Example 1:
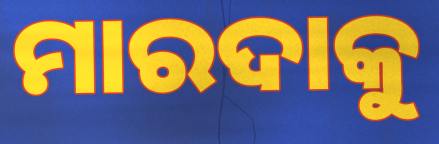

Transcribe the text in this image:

ମାରଦାକୁ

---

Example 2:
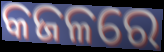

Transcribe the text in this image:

କଜଳରେ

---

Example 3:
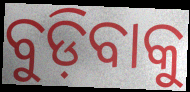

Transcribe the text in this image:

ବୁଡ଼ିବାକୁ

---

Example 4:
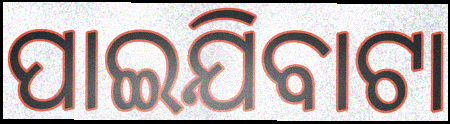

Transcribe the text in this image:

ପାଇଯିବାଟା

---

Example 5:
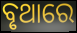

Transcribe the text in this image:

ବୃଥାରେ